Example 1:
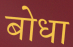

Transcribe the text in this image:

बोधा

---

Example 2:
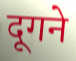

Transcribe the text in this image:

दूगने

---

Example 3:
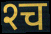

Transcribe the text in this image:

श्च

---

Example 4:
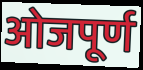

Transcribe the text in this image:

ओजपूर्ण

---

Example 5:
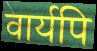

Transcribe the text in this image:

वार्यपि